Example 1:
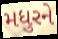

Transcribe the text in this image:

મધુરને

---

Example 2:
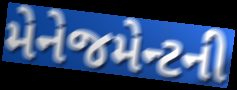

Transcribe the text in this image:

મેનેજમેન્ટની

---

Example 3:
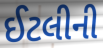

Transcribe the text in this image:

ઈટલીની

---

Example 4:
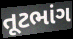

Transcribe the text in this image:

તૂટભાંગ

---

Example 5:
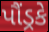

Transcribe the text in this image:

પૌંડ્રકે